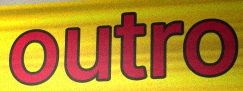
outro